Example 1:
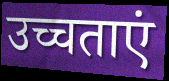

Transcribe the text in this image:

उच्चताएं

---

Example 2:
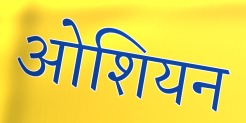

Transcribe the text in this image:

ओशियन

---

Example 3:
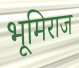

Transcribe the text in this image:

भूमिराज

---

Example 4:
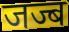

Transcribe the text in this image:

जज्ब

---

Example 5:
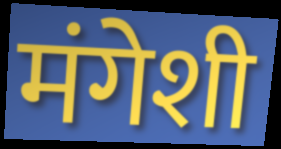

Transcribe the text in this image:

मंगेशी